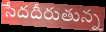
సేదదీరుతున్న